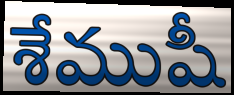
శేముషీ